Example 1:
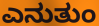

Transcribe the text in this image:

ಎನುತುಂ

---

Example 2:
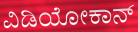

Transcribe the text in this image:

ವಿಡಿಯೋಕಾನ್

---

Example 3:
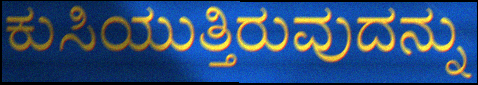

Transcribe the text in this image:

ಕುಸಿಯುತ್ತಿರುವುದನ್ನು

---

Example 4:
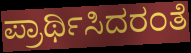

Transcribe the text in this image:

ಪ್ರಾರ್ಥಿಸಿದರಂತೆ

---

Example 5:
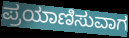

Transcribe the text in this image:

ಪ್ರಯಾಣಿಸುವಾಗ